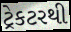
ટ્રેકટરથી